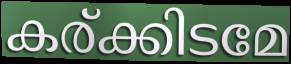
കര്ക്കിടമേ